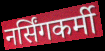
नर्सिंगकर्मी